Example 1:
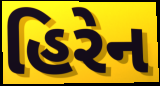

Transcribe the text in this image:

હિરેન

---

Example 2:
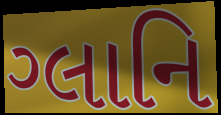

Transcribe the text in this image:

ગ્લાનિ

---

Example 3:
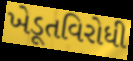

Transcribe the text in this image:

ખેડૂતવિરોધી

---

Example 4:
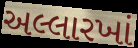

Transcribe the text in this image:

અલ્લારખાં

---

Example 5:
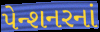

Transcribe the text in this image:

પેન્શનરનાં